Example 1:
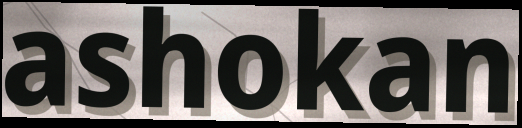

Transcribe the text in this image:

ashokan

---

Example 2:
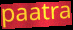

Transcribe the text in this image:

paatra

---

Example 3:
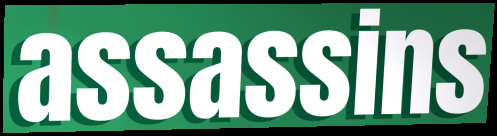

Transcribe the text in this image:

assassins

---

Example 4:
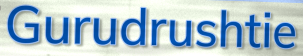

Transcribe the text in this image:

Gurudrushtie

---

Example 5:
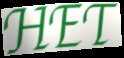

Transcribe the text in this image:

HET